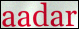
aadar